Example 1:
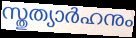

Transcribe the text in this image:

സ്തുത്യാർഹനും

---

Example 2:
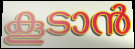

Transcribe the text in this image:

കൂടാൻ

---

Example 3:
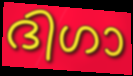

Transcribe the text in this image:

ദിഗാ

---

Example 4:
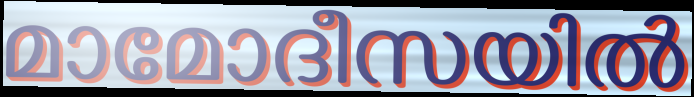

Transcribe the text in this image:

മാമോദീസയിൽ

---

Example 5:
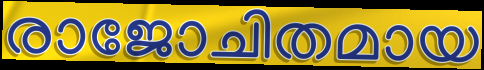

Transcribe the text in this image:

രാജോചിതമായ